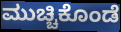
ಮುಚ್ಚಿಕೊಂಡೆ